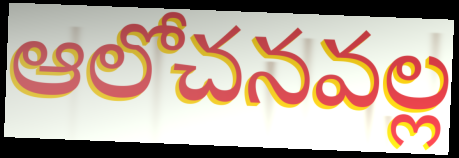
ఆలోచనవల్ల